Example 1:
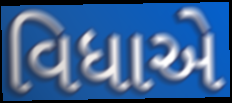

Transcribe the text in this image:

વિધાએ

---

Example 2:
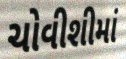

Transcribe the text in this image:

ચોવીશીમાં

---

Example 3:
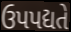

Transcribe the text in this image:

ઉપપદ્યતે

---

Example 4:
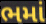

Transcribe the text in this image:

ભમાં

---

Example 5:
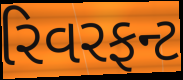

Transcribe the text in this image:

રિવરફન્ટ